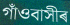
গাঁওবাসীৰ